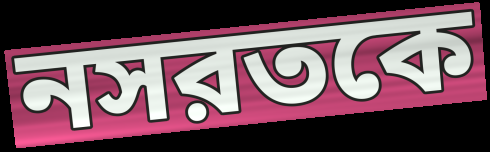
নসরতকে